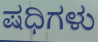
ಷಧಿಗಳು